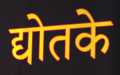
द्योतके